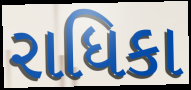
રાધિકા